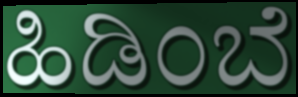
ಹಿಡಿಂಬೆ